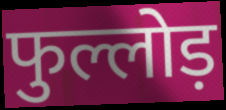
फुल्लोड़